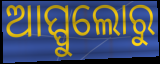
ଆପ୍ପୁଲୋରୁ